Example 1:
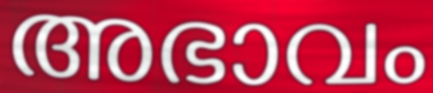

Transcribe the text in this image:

അഭാവം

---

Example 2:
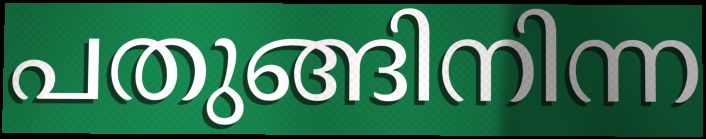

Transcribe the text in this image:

പതുങ്ങിനിന്ന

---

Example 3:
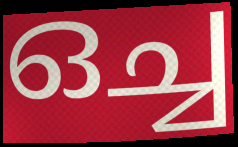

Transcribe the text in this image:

ഒച്ച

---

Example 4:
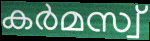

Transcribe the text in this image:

കർമസ്വ്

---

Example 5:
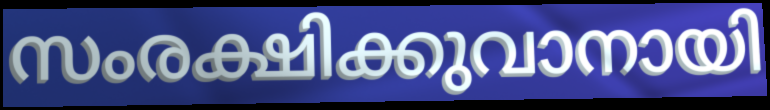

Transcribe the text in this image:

സംരക്ഷിക്കുവാനായി